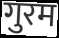
गुरम